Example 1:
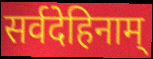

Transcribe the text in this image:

सर्वदेहिनाम्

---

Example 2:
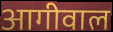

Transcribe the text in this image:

आगीवाल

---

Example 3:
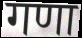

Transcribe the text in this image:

गणा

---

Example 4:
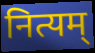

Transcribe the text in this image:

नित्यम्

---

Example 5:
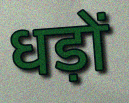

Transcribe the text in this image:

धड़ों